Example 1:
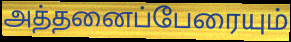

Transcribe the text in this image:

அத்தனைப்பேரையும்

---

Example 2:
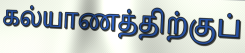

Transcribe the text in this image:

கல்யாணத்திற்குப்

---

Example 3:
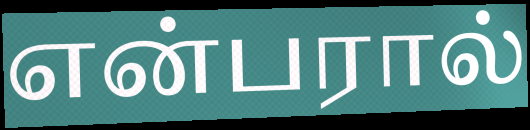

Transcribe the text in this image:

என்பரால்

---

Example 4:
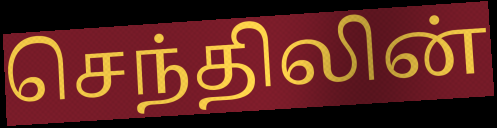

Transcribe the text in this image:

செந்திலின்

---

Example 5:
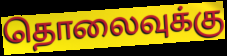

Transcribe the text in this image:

தொலைவுக்கு